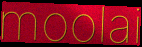
moolai